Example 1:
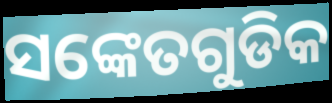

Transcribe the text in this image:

ସଙ୍କେତଗୁଡିକ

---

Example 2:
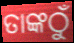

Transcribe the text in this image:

ତାଙ୍କଠୁଁ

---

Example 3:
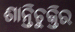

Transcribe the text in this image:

ଶାନ୍ତିଚୁକ୍ତିର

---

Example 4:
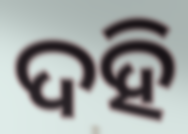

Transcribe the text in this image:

ଦହି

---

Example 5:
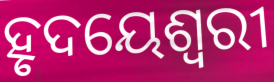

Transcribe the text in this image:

ହୃଦୟେଶ୍ୱରୀ